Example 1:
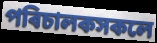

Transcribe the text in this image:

পৰিচালকসকলে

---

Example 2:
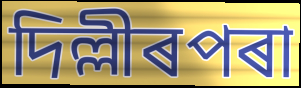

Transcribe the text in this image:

দিল্লীৰপৰা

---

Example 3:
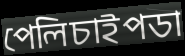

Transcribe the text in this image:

পেলিচাইপডা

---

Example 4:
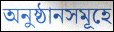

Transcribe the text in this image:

অনুষ্ঠানসমূহে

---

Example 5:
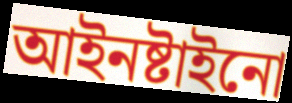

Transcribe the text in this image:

আইনষ্টাইনো